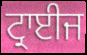
ਟ੍ਰਾਈਜ